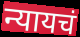
न्यायचं